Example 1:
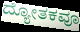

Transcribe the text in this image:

ದ್ಯೋತಕವೂ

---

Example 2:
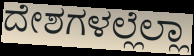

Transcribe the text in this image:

ದೇಶಗಳಲ್ಲೆಲ್ಲಾ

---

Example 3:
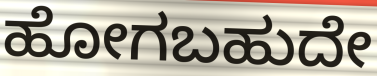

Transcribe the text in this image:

ಹೋಗಬಹುದೇ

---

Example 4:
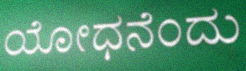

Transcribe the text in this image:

ಯೋಧನೆಂದು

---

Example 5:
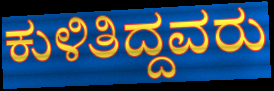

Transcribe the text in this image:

ಕುಳಿತಿದ್ದವರು